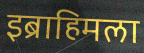
इब्राहिमला